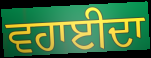
ਵਹਾਈਦਾ